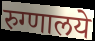
रुग्णालये